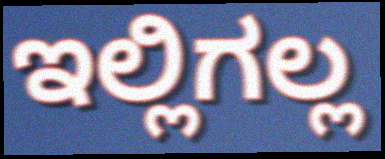
ಇಲ್ಲಿಗಲ್ಲ